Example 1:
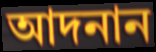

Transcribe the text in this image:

আদনান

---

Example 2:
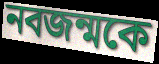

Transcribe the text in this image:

নবজন্মকে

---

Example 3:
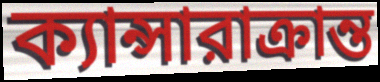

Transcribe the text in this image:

ক্যান্সারাক্রান্ত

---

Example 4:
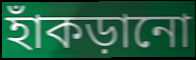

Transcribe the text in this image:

হাঁকড়ানো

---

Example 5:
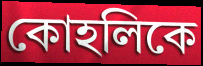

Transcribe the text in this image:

কোহলিকে